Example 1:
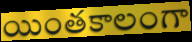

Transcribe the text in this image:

యింతకాలంగా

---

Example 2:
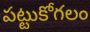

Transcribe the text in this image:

పట్టుకోగలం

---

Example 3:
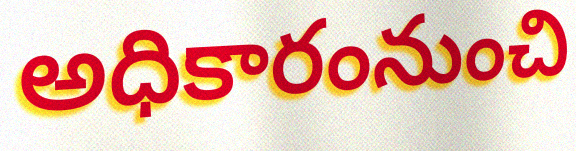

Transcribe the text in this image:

అధికారంనుంచి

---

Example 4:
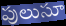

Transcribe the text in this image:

పులుసూ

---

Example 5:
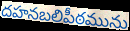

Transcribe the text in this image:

దహనబలిపీఠమును